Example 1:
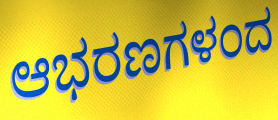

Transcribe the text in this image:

ಆಭರಣಗಳಂದ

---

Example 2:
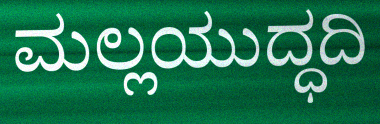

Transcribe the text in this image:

ಮಲ್ಲಯುದ್ಧದಿ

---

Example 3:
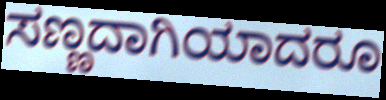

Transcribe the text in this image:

ಸಣ್ಣದಾಗಿಯಾದರೂ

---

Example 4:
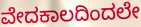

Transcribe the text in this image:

ವೇದಕಾಲದಿಂದಲೇ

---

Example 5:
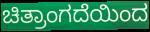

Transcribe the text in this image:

ಚಿತ್ರಾಂಗದೆಯಿಂದ